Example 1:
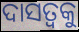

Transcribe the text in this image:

ଦାସତ୍ୱକୁ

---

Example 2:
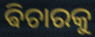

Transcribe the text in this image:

ଵିଚାରକୁ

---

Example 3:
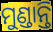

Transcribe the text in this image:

ମୁଣ୍ଡାନ୍ତି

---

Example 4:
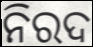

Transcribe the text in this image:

ନିରଦ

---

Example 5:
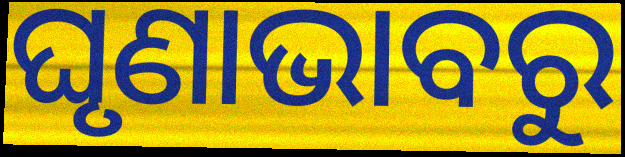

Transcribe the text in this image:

ଘୃଣାଭାବରୁ